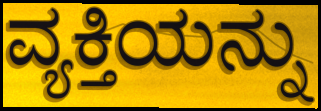
ವ್ಯಕ್ತಿಯನ್ನು